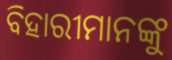
ବିହାରୀମାନଙ୍କୁ